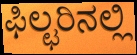
ಫಿಲ್ಟರಿನಲ್ಲಿ